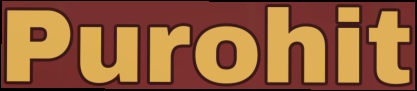
Purohit